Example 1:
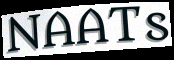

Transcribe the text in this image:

NAATs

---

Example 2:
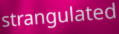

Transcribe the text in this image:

strangulated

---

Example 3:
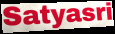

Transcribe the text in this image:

Satyasri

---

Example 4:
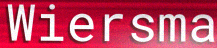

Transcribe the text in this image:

Wiersma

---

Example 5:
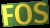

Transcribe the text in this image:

FOS